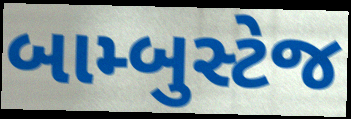
બામ્બુસ્ટેજ